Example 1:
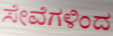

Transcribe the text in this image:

ಸೇವೆಗಳಿಂದ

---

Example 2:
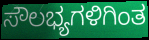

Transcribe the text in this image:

ಸೌಲಭ್ಯಗಳಿಗಿಂತ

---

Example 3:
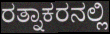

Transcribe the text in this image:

ರತ್ನಾಕರನಲ್ಲಿ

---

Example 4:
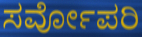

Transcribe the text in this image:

ಸರ್ವೋಪರಿ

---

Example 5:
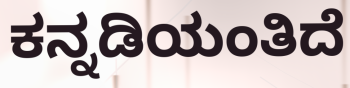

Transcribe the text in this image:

ಕನ್ನಡಿಯಂತಿದೆ